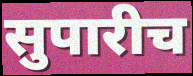
सुपारीच